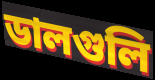
ডালগুলি